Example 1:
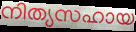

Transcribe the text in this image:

നിത്യസഹായ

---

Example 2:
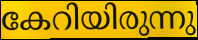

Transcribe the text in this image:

കേറിയിരുന്നു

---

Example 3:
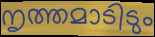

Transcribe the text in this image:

നൃത്തമാടിടും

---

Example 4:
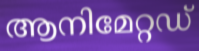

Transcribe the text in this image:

ആനിമേറ്റഡ്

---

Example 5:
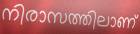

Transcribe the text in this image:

നിരാസത്തിലാണ്